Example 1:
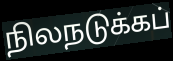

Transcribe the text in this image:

நிலநடுக்கப்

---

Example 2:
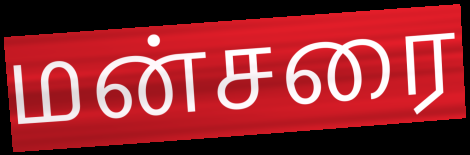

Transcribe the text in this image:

மன்சரை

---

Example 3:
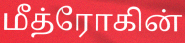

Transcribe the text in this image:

மீத்ரோகின்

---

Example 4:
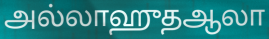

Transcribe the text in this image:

அல்லாஹுதஆலா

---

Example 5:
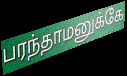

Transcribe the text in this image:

பரந்தாமனுக்கே